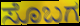
ಸೊಬಗ